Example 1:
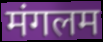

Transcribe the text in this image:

मंगलम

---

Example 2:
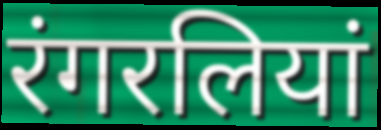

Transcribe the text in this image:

रंगरलियां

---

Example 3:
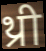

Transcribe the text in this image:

थ्री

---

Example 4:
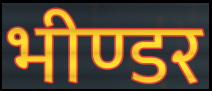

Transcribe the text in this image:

भीण्डर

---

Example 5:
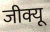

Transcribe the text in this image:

जीक्यू